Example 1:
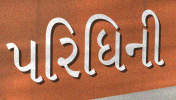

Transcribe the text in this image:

પરિધિની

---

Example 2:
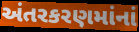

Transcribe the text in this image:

અંતરકરણમાંનાં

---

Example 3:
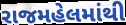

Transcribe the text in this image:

રાજમહેલમાંથી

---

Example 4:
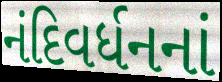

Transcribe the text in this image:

નંદિવર્ધનનાં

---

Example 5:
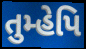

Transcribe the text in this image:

તુમ્હેપિ